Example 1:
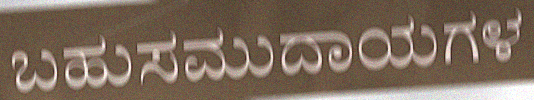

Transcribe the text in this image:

ಬಹುಸಮುದಾಯಗಳ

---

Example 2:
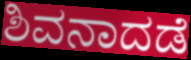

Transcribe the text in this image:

ಶಿವನಾದಡೆ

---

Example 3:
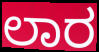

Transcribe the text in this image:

ಲಾರ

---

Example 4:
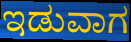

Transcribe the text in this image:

ಇಡುವಾಗ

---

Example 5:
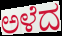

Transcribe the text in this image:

ಅಳೆದ